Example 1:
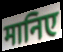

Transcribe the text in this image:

मानिए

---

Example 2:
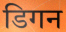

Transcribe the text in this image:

डिगन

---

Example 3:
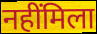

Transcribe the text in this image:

नहींमिला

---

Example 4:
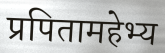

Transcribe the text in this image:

प्रपितामहेभ्य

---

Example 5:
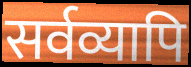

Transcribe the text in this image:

सर्वव्यापि